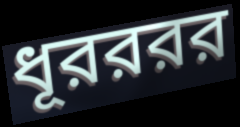
ধূরররর